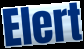
Elert